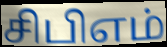
சிபிஎம்